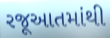
રજૂઆતમાંથી